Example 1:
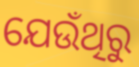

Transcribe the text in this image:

ଯେଉଁଥିରୁ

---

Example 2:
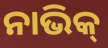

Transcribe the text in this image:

ନାଭିକ୍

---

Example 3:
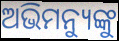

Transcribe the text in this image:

ଅଭିମନ୍ୟୁଙ୍କୁ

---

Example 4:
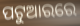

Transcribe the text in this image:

ପଟୁଆରରେ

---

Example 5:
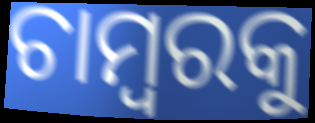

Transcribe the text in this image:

ଚାମ୍ବରକୁ